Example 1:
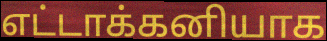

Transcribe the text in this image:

எட்டாக்கனியாக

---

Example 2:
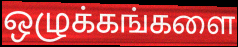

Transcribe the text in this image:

ஒழுக்கங்களை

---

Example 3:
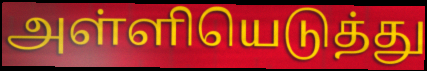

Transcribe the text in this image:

அள்ளியெடுத்து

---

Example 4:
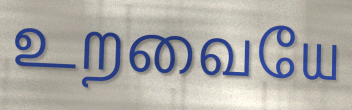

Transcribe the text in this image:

உறவையே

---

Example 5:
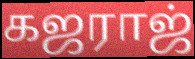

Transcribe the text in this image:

கஜராஜ்